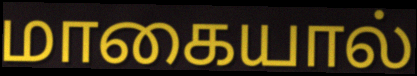
மாகையால்